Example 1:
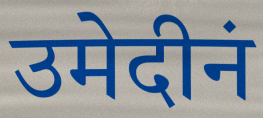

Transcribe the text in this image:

उमेदीनं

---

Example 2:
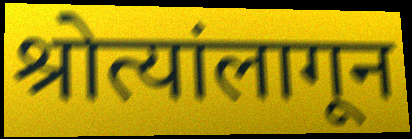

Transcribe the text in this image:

श्रोत्यांलागून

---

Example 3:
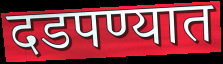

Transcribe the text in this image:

दडपण्यात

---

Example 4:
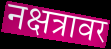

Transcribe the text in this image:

नक्षत्रावर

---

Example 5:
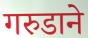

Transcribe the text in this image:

गरुडाने